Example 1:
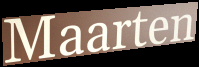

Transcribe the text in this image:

Maarten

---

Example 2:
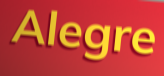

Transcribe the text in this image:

Alegre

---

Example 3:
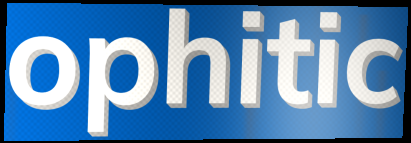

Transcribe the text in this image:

ophitic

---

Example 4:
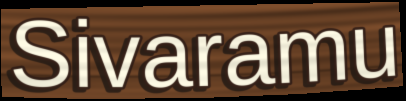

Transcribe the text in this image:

Sivaramu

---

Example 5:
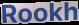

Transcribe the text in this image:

Rookh